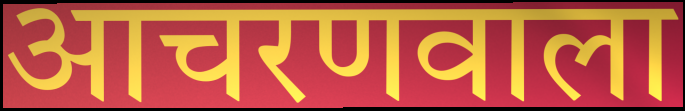
आचरणवाला